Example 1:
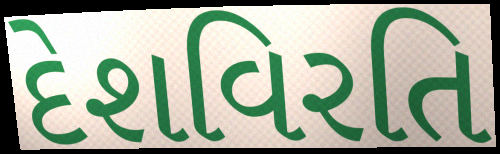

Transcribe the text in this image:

દેશવિરતિ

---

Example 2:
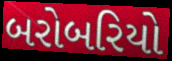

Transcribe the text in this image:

બરોબરિયો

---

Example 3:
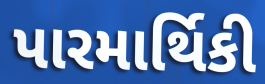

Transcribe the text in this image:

પારમાર્થિકી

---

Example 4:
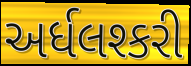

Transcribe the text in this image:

અર્ધલશ્કરી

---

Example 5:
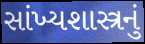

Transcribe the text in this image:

સાંખ્યશાસ્ત્રનું